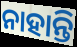
ନାହାନ୍ତି